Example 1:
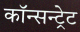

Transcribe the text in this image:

कॉन्सन्ट्रेट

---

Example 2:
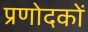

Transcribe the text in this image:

प्रणोदकों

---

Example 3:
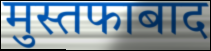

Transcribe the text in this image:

मुस्तफाबाद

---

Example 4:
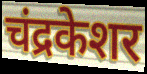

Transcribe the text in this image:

चंद्रकेशर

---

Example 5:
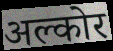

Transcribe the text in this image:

अल्कोर